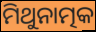
ମିଥୁନାତ୍ମକ